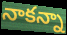
నాకన్నా